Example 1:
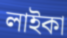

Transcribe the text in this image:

লাইকা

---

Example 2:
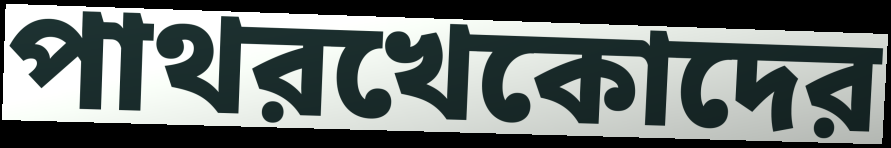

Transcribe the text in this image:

পাথরখেকোদের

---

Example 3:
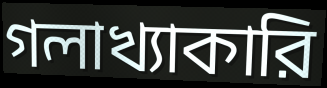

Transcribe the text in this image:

গলাখ্যাকারি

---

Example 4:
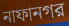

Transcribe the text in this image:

নাফানগর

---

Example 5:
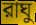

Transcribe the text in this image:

রাঘু